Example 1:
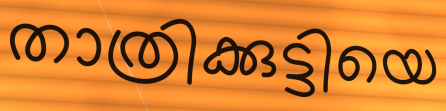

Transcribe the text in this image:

താത്രിക്കുട്ടിയെ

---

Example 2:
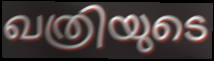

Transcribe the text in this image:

ഖത്രിയുടെ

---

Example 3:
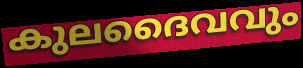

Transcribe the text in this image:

കുലദൈവവും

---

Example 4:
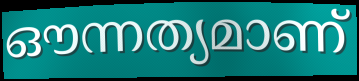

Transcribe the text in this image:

ഔന്നത്യമാണ്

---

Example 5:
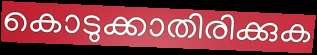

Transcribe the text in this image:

കൊടുക്കാതിരിക്കുക